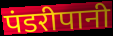
पंडरीपानी